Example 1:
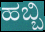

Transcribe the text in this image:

ಹಬ್ಬಿ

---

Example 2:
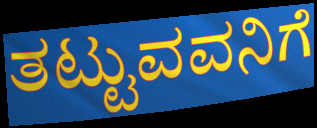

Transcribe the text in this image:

ತಟ್ಟುವವನಿಗೆ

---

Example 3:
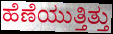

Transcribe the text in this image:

ಹೆಣೆಯುತ್ತಿತ್ತು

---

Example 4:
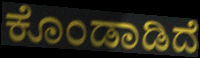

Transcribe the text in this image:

ಕೊಂಡಾಡಿದೆ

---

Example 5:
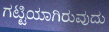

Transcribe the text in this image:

ಗಟ್ಟಿಯಾಗಿರುವುದು